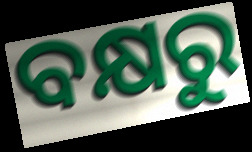
ବକ୍ଷରୁ